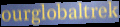
ourglobaltrek